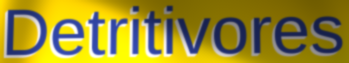
Detritivores